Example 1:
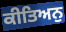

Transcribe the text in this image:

ਕੀਤਿਅਨੁ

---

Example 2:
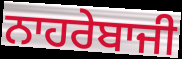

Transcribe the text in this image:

ਨਾਹਰੇਬਾਜੀ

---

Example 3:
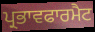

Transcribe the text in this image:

ਪ੍ਰਭਾਵਫਾਰਮੈਟ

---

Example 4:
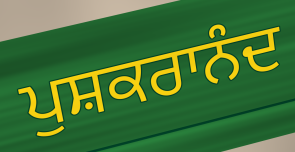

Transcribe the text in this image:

ਪੁਸ਼ਕਰਾਨੰਦ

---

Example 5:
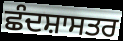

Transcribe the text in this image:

ਛੰਦਸ਼ਾਸਤਰ